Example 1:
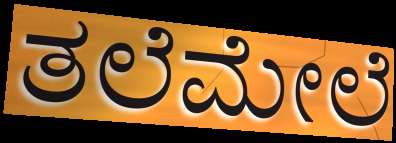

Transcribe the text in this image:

ತಲೆಮೇಲೆ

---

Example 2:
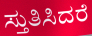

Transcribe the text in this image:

ಸ್ತುತಿಸಿದರೆ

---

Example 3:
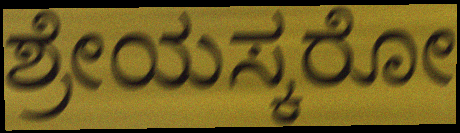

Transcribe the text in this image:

ಶ್ರೇಯಸ್ಕರೋ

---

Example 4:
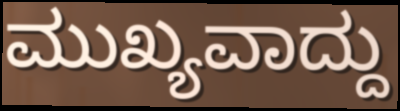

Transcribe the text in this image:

ಮುಖ್ಯವಾದ್ದು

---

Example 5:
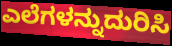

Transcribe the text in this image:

ಎಲೆಗಳನ್ನುದುರಿಸಿ